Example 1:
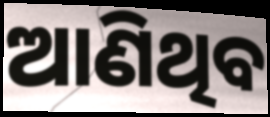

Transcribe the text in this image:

ଆଣିଥିବ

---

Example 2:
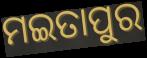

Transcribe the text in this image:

ମଇତାପୁର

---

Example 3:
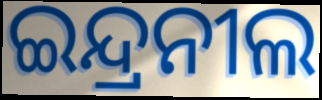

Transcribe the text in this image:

ଇନ୍ଦ୍ରନୀଲ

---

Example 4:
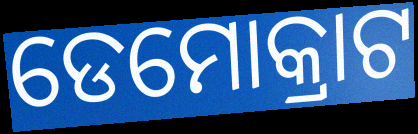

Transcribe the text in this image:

ଡେମୋକ୍ରାଟ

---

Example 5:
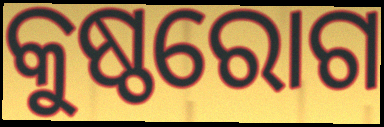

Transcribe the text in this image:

କୁଷ୍ଠରୋଗ